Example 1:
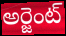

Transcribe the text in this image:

అర్జెంట్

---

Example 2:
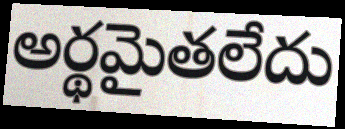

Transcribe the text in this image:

అర్థమైతలేదు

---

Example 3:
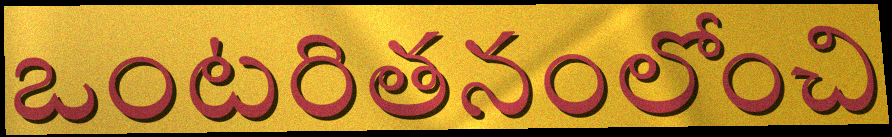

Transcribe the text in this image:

ఒంటరితనంలోంచి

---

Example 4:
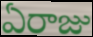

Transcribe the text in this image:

ఏరాజు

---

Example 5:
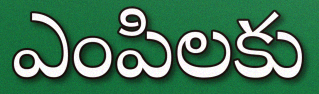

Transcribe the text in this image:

ఎంపిలకు